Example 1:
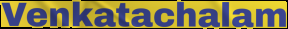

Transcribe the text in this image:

Venkatachalam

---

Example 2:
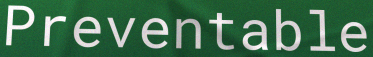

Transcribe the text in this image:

Preventable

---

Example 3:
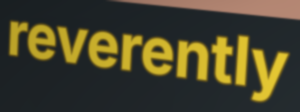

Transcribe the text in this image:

reverently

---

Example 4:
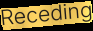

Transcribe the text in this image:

Receding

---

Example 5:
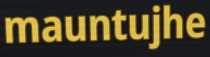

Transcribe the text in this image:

mauntujhe